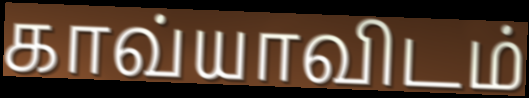
காவ்யாவிடம்